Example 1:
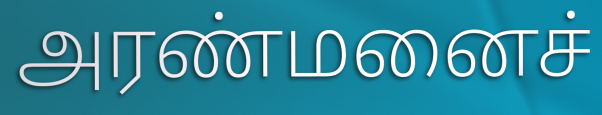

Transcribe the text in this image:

அரண்மனைச்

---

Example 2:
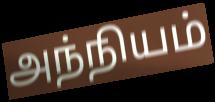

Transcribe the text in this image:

அந்நியம்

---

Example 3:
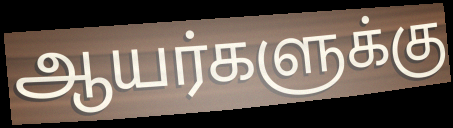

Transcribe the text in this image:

ஆயர்களுக்கு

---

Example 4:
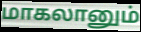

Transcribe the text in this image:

மாகலானும்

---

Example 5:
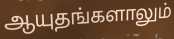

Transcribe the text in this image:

ஆயுதங்களாலும்